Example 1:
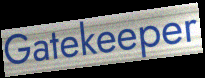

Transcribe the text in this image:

Gatekeeper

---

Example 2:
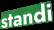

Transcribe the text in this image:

standi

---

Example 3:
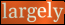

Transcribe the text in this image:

largely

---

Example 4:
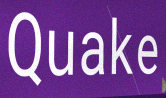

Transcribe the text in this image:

Quake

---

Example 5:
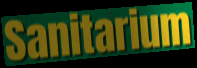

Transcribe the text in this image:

Sanitarium